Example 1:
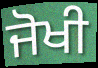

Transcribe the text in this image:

ਜੋਖੀ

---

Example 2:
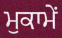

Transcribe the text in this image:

ਮੁਕਾਮੇਂ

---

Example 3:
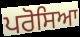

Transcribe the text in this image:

ਪਰੋਸਿਆ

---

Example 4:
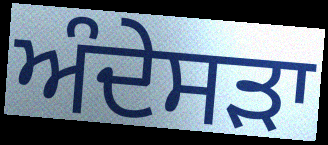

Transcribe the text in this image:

ਅੰਦੇਸੜਾ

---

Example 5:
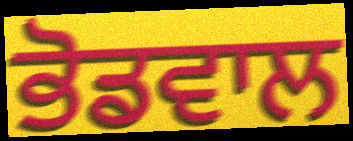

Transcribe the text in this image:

ਭੋਡਵਾਲ